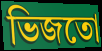
ভিজতো